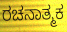
ರಚನಾತ್ಮಕ